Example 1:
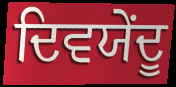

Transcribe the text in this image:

ਦਿਵਯੇਂਦੂ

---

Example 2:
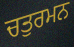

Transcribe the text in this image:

ਚਤੁਰਮਨ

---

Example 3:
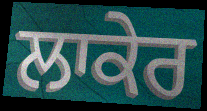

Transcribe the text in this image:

ਲਾਕੇਰ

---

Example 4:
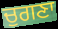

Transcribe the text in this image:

ਚੁਗਣਾ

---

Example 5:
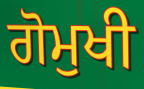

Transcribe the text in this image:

ਗੋਮੁਖੀ